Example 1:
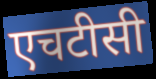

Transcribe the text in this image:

एचटीसी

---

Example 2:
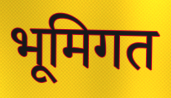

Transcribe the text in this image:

भूमिगत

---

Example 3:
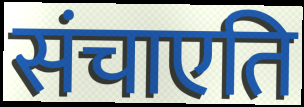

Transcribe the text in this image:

संचाएति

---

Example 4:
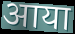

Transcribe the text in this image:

आया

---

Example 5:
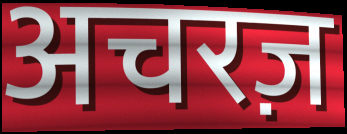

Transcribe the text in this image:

अचरज़